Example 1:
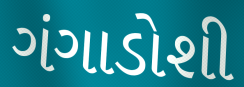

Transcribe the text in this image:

ગંગાડોશી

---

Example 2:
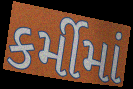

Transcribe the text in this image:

કર્મીમાં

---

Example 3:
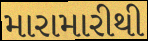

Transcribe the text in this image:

મારામારીથી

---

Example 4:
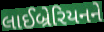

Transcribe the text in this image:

લાઈબ્રેરિયનને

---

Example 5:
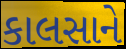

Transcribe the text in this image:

કાલસાને